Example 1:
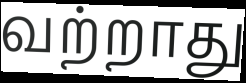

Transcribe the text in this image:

வற்றாது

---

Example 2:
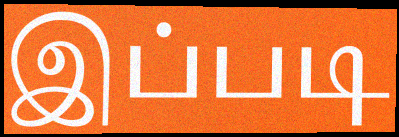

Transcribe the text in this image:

இப்படி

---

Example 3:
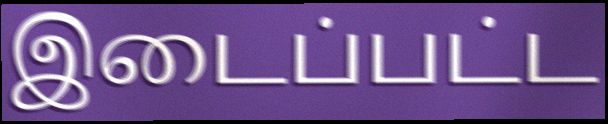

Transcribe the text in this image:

இடைப்பட்ட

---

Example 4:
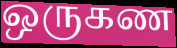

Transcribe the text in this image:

ஒருகண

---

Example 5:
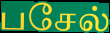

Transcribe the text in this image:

பசேல்